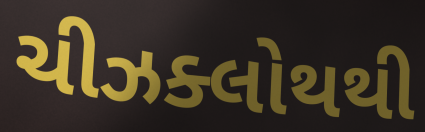
ચીઝક્લોથથી